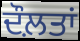
ਦੌਲ਼ਤਾਂ